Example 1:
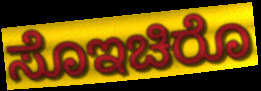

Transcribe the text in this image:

ಸೊಇಚಿರೊ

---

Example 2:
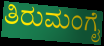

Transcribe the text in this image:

ತಿರುಮಂಗೈ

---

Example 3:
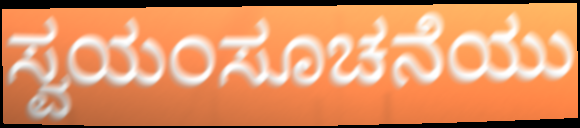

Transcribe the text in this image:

ಸ್ವಯಂಸೂಚನೆಯು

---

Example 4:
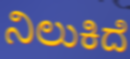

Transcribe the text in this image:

ನಿಲುಕಿದೆ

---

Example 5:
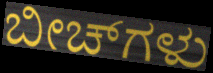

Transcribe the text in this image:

ಬೀಚ್‌ಗಳು